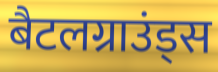
बैटलग्राउंड्स